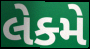
લેક્મે